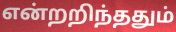
என்றறிந்ததும்